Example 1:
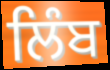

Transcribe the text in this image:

ਲਿੰਬ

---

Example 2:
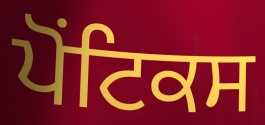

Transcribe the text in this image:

ਪੋਂਟਿਕਸ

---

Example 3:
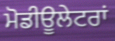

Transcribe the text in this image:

ਮੋਡੀਊਲੇਟਰਾਂ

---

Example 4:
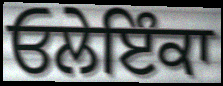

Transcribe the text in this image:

ਓਲੇਇੰਕਾ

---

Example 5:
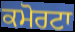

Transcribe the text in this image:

ਕਮੋਰਟਾ